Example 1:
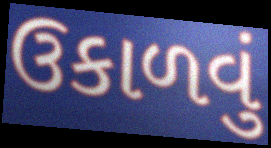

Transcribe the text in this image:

ઉકાળવું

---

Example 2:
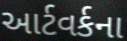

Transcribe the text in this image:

આર્ટવર્કના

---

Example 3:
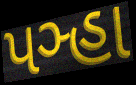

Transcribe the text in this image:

પઞ્હા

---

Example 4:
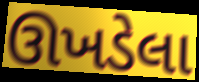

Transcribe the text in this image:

ઊખડેલા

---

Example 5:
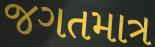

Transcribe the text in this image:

જગતમાત્ર